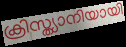
ക്രിസ്ത്യാനിയായി